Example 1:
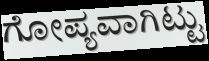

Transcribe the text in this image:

ಗೋಪ್ಯವಾಗಿಟ್ಟು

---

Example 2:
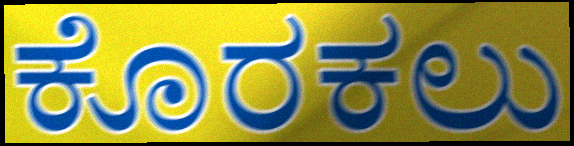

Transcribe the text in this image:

ಕೊರಕಲು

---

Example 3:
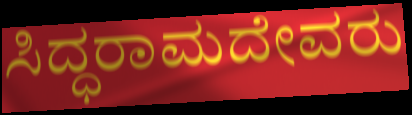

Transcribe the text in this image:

ಸಿದ್ಧರಾಮದೇವರು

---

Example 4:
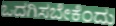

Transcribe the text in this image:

ಒದಗಿಸಬೇಕೆಂದು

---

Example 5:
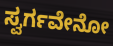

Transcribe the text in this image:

ಸ್ವರ್ಗವೇನೋ